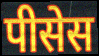
पीसेस